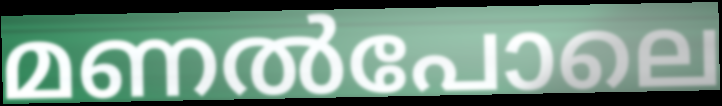
മണൽപോലെ